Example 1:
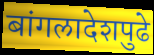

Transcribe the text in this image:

बांगलादेशपुढे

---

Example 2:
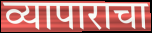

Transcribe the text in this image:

व्यापाराचा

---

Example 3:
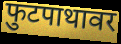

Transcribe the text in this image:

फुटपाथावर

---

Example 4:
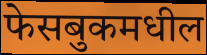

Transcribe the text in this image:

फेसबुकमधील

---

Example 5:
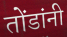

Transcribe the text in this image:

तोंडांनी